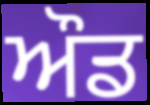
ਔਡ